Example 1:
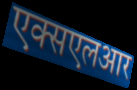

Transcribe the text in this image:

एक्सएलआर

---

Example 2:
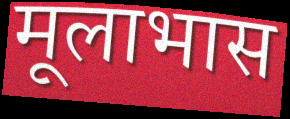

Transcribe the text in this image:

मूलाभास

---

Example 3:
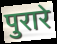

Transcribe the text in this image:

पुरारे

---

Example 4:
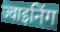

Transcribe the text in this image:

ज्वाइनिंग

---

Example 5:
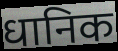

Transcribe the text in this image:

धानिक